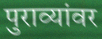
पुराव्यांवर